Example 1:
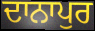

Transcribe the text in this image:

ਦਾਨਾਪੁਰ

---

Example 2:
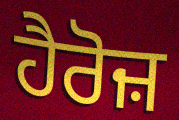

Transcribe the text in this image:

ਹੈਰੋਜ਼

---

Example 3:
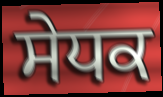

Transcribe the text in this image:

ਸੇਧਕ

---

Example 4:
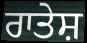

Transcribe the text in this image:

ਰਾਤੇਸ਼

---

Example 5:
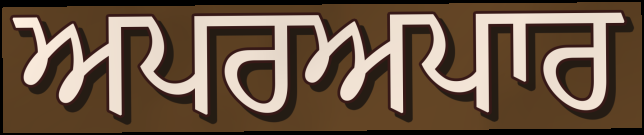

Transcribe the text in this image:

ਅਪਰਅਪਾਰ